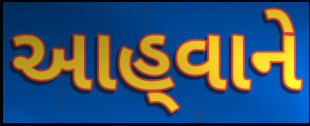
આહ્‌વાને